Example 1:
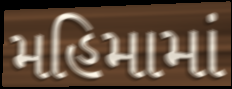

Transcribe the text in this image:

મહિમામાં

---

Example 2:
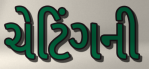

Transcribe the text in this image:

ચેટિંગની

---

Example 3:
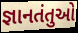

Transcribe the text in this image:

જ્ઞાનતંતુઓ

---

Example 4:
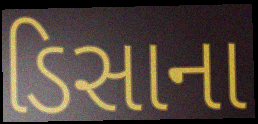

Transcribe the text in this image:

ડિસાના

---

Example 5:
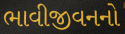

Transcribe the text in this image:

ભાવીજીવનનો